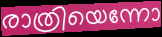
രാത്രിയെന്നോ